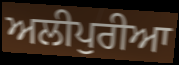
ਅਲੀਪੁਰੀਆ